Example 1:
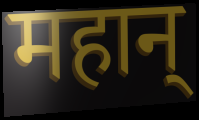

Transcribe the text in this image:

महान्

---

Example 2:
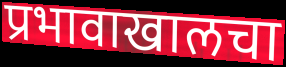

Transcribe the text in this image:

प्रभावाखालचा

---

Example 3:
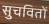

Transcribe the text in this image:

सुचवितों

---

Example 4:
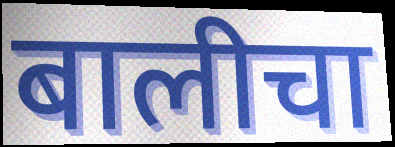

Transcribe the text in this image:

बालीचा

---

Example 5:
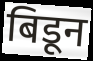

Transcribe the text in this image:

बिडून